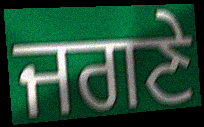
ਜਗਣੇ